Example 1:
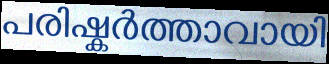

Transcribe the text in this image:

പരിഷ്കർത്താവായി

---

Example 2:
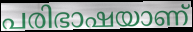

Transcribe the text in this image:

പരിഭാഷയാണ്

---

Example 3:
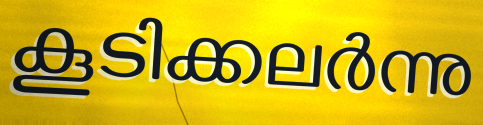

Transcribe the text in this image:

കൂടിക്കലർന്നു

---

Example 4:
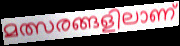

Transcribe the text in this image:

മത്സരങ്ങളിലാണ്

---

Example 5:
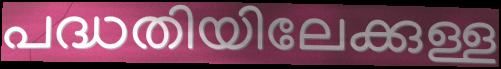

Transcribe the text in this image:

പദ്ധതിയിലേക്കുള്ള